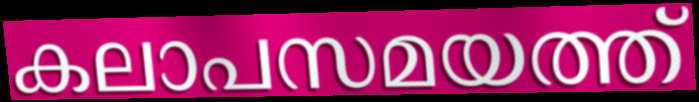
കലാപസമയത്ത്